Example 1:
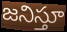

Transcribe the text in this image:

జనిస్తూ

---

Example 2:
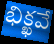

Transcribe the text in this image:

భిక్ఖవే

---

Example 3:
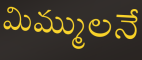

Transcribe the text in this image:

మిమ్ములనే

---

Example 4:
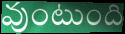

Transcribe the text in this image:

వుంటుంది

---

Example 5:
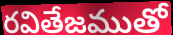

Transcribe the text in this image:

రవితేజముతో